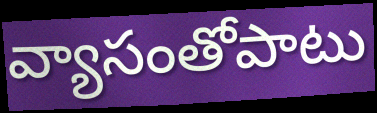
వ్యాసంతోపాటు